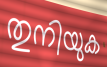
തുനിയുക